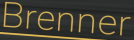
Brenner